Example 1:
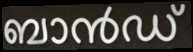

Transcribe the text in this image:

ബാൻഡ്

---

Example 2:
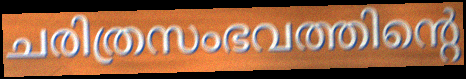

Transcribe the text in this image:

ചരിത്രസംഭവത്തിന്റെ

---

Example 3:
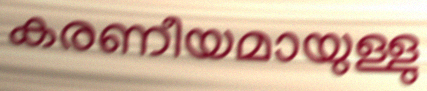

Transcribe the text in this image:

കരണീയമായുള്ളു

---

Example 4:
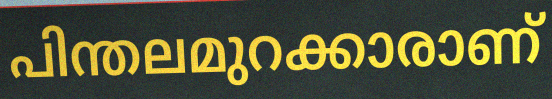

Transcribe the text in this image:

പിന്തലമുറക്കാരാണ്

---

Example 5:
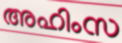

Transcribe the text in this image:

അഹിംസ